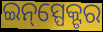
ଇନ୍‌ସ୍ପେକ୍ଟର